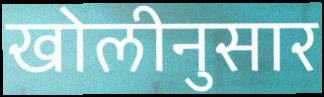
खोलीनुसार